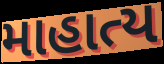
માહાત્ય